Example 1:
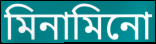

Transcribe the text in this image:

মিনামিনো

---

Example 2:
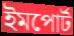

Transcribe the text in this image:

ইমপোর্ট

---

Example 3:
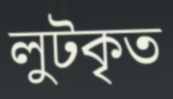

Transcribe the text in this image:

লুটকৃত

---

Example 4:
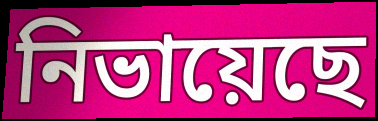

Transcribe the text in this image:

নিভায়েছে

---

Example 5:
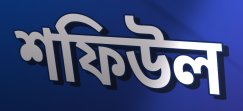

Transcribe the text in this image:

শফিউল